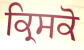
ਕ੍ਰਿਸਕੋ